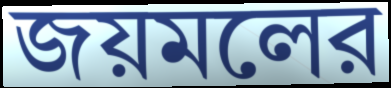
জয়মলের